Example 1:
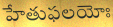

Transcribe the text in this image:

హేతుఫలయోః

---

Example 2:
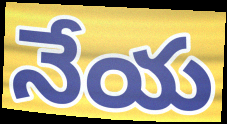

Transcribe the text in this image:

నేయ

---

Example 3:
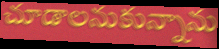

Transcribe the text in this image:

చూడాలనుకున్నాను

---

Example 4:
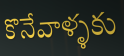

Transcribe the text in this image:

కొనేవాళ్ళకు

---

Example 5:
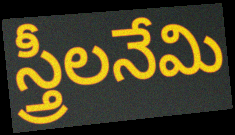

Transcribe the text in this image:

స్త్రీలనేమి